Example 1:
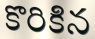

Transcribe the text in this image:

కొరికిన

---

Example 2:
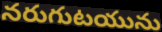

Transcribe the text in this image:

నరుగుటయును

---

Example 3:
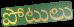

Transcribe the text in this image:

పోటులు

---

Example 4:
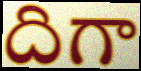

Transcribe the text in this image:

దిగా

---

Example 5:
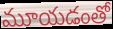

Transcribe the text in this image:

మూయడంతో